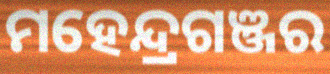
ମହେନ୍ଦ୍ରଗଞ୍ଜର